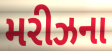
મરીઝના